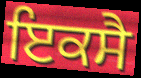
ਇਕਸੈ